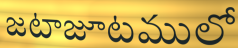
జటాజూటములో